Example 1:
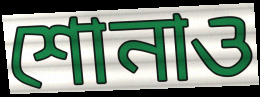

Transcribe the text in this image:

শোনাও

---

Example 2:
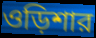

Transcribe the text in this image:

ওড়িশার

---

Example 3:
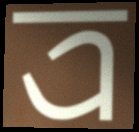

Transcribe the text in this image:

ত্র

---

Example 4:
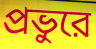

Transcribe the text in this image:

প্রভুরে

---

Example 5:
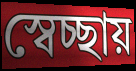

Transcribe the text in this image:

স্বেচ্ছায়